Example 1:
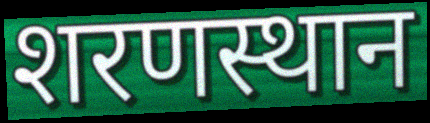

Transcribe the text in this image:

शरणस्थान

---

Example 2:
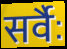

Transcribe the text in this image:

सर्वैः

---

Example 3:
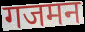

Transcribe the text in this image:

गजमन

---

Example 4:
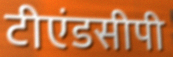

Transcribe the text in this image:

टीएंडसीपी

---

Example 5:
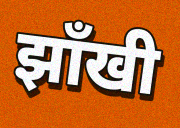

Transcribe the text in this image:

झाँखी